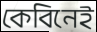
কেবিনেই